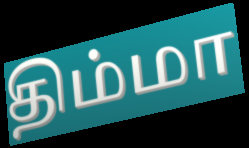
திம்மா